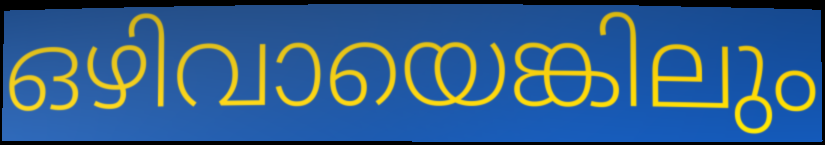
ഒഴിവായെങ്കിലും